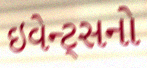
ઇવેન્ટ્સનો